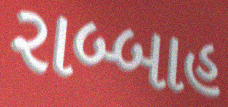
રાબ્બાહ